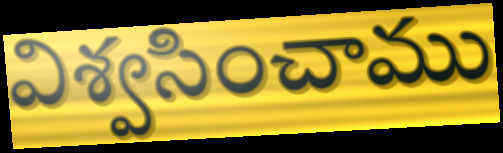
విశ్వసించాము